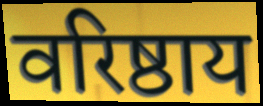
वरिष्ठाय